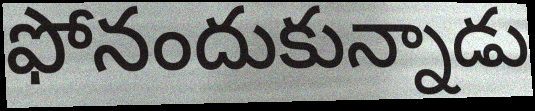
ఫోనందుకున్నాడు